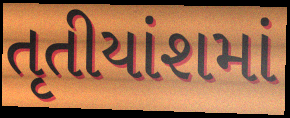
તૃતીયાંશમાં